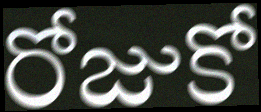
రోజుకో